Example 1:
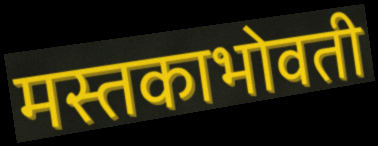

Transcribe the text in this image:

मस्तकाभोवती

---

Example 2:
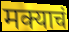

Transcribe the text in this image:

मक्याचं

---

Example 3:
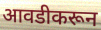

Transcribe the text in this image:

आवडीकरून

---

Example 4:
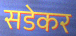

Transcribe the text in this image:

सडेकर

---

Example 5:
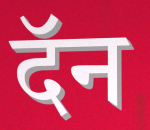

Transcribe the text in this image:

दॅन